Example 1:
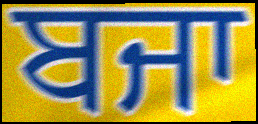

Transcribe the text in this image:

ਬਜਾ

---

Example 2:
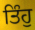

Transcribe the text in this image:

ਤਿੰਹੁ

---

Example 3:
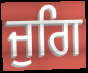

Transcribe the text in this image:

ਜੁਗਿ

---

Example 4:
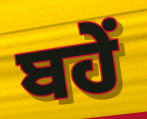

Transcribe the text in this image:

ਬਹੇਂ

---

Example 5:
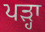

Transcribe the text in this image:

ਪੜ੍ਹਾ